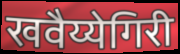
खवैय्येगिरी